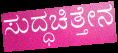
ಸುದ್ಧಚಿತ್ತೇನ